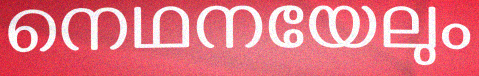
നെഥനയേലും